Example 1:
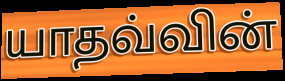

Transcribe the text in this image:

யாதவ்வின்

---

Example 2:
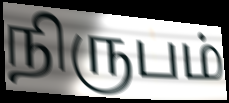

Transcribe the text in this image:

நிருபம்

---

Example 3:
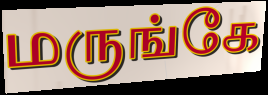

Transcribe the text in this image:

மருங்கே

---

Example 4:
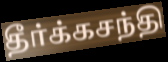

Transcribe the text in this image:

தீர்க்கசந்தி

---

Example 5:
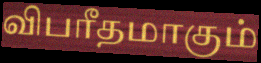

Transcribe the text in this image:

விபரீதமாகும்